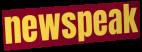
newspeak